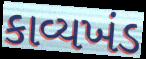
કાવ્યખંડ